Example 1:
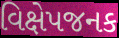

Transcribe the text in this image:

વિક્ષેપજનક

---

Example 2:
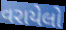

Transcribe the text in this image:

વરાયેલો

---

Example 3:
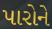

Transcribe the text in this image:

પારોને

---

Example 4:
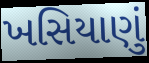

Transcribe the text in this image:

ખસિયાણું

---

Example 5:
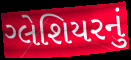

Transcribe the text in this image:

ગ્લેશિયરનું